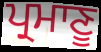
ਪ੍ਰਮਾਣੂ